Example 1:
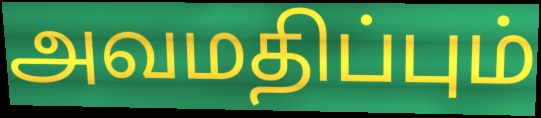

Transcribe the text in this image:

அவமதிப்பும்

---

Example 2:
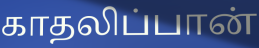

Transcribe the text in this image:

காதலிப்பான்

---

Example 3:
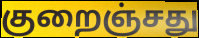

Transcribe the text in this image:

குறைஞ்சது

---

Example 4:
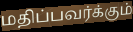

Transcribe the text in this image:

மதிப்பவர்க்கும்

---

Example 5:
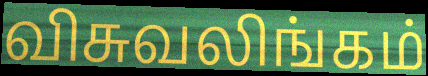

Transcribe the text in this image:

விசுவலிங்கம்